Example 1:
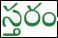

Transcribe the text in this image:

స్తరం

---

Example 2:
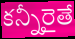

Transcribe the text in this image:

కన్నీరైతే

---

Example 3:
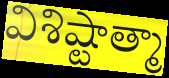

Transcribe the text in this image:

విశిష్టాత్మా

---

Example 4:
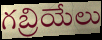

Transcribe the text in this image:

గబ్రియేలు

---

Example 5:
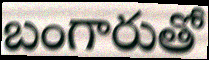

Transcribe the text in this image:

బంగారుతో